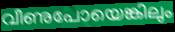
വീണുപോയെങ്കിലും